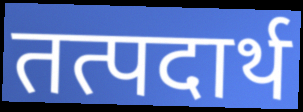
तत्पदार्थ